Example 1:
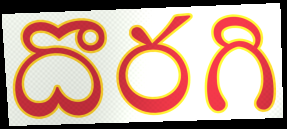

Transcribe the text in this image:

దొరగి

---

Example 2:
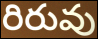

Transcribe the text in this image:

రిరువు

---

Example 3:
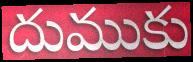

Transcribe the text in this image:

దుముకు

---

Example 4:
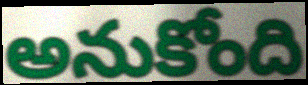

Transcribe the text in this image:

అనుకోంది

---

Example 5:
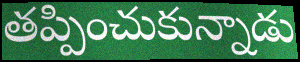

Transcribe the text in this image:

తప్పించుకున్నాడు